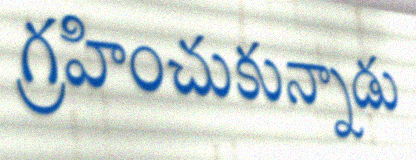
గ్రహించుకున్నాడు